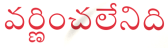
వర్ణించలేనిది